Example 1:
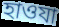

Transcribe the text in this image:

হাওযা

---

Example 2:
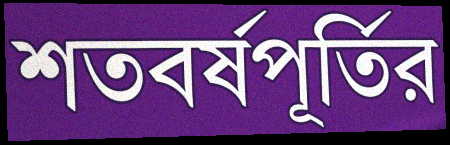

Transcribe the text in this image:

শতবর্ষপূর্তির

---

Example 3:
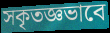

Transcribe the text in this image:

সকৃতজ্ঞভাবে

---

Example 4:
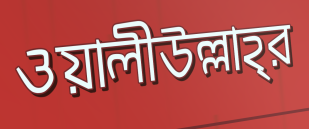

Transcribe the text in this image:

ওয়ালীউল্লাহ্‌র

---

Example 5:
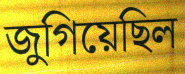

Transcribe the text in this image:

জুগিয়েছিল